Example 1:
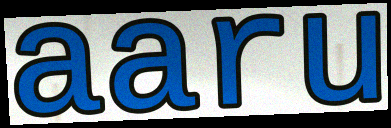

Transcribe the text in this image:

aaru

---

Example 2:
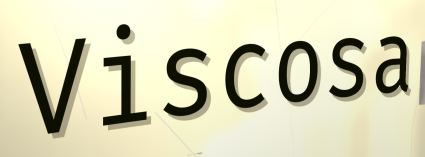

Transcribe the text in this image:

Viscosa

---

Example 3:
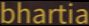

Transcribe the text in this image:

bhartia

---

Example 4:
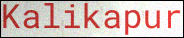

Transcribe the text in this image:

Kalikapur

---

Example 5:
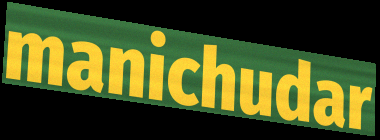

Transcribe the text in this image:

manichudar